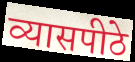
व्यासपीठे